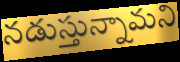
నడుస్తున్నామని